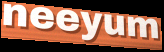
neeyum